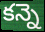
కన్నె